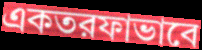
একতরফাভাবে